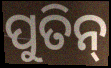
ପୁତିନ୍